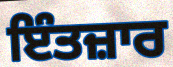
ਇੰਤਜ਼ਾਰ